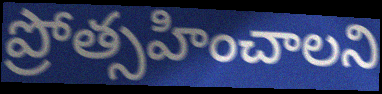
ప్రోత్సహించాలని